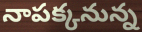
నాపక్కనున్న